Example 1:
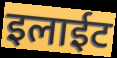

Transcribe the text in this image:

इलाईट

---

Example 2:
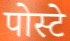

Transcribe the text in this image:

पोस्टे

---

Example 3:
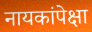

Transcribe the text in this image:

नायकांपेक्षा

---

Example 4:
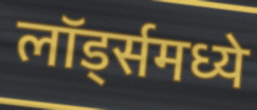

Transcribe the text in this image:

लॉर्ड्समध्ये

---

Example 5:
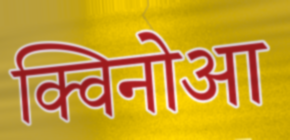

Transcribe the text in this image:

क्विनोआ